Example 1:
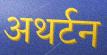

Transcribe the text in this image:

अथर्टन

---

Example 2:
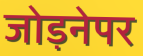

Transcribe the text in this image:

जोड़नेपर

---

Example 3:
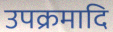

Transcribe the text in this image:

उपक्रमादि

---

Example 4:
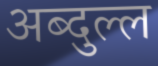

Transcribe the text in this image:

अब्दुल्ल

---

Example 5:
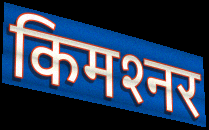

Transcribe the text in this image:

किमश्नर